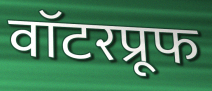
वॉटरप्रूफ